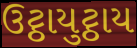
ઉટ્ઠાયુટ્ઠાય